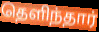
தெளிந்தார்